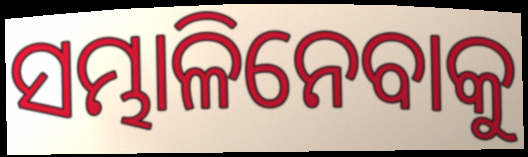
ସମ୍ଭାଳିନେବାକୁ